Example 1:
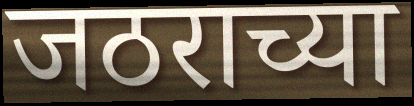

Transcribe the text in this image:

जठराच्या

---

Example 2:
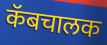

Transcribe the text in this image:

कॅबचालक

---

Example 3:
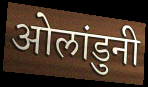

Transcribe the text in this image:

ओलांडुनी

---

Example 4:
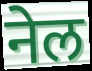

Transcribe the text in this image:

नेल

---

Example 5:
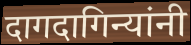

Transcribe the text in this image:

दागदागिन्यांनी